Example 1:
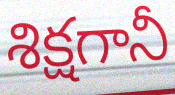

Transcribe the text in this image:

శిక్షగానీ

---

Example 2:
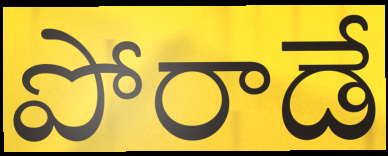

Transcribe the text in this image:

పోరాడే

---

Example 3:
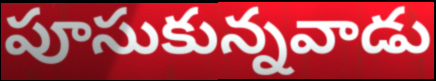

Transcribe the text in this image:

పూసుకున్నవాడు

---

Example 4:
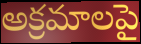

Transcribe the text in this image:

అక్రమాలపై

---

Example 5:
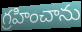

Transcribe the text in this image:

గ్రహించాను